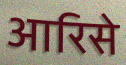
आरिसे